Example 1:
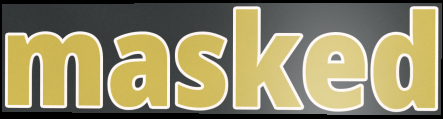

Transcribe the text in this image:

masked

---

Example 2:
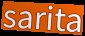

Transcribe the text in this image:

sarita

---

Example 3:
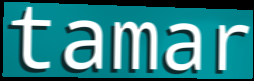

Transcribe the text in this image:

tamar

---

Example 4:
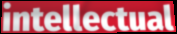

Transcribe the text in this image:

intellectual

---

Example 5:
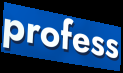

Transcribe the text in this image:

profess